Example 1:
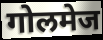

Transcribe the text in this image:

गोलमेज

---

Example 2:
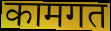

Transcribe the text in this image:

कामगत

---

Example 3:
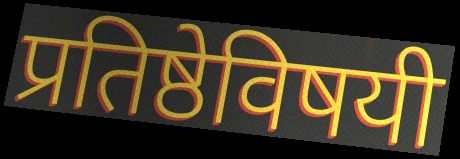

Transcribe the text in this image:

प्रतिष्ठेविषयी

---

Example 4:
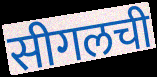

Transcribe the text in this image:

सीगलची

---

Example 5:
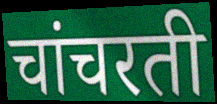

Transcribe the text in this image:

चांचरती